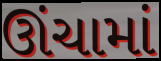
ઊંચામાં